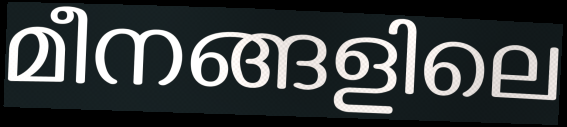
മീനങ്ങളിലെ